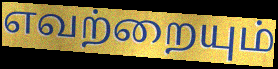
எவற்றையும்